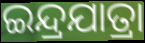
ଇନ୍ଦ୍ରଯାତ୍ରା